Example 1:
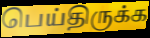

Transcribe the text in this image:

பெய்திருக்க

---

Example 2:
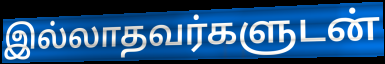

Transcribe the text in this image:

இல்லாதவர்களுடன்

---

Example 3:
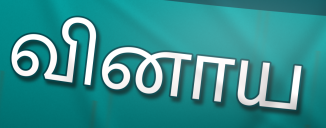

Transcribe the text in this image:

வினாய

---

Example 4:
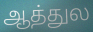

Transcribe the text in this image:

ஆத்துல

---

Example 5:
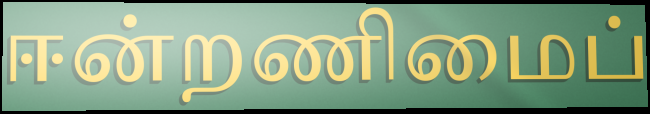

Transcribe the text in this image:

ஈன்றணிமைப்